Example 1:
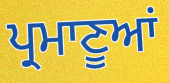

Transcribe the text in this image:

ਪ੍ਰਮਾਣੂਆਂ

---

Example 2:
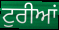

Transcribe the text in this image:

ਟੁਰੀਆਂ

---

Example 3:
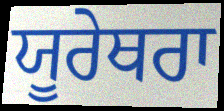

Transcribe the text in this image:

ਯੂਰੇਥਰਾ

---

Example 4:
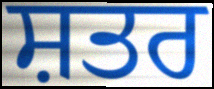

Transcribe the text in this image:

ਸ਼ਤਰ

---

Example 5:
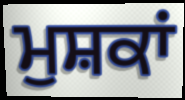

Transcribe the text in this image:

ਮੁਸ਼ਕਾਂ